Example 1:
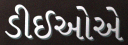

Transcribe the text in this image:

ડીઈઓએ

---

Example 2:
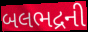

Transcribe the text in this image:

બલભદ્રની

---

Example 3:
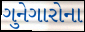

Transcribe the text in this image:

ગુનેગારોના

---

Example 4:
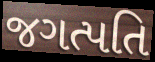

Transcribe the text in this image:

જગત્પતિ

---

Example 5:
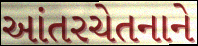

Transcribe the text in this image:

આંતરચેતનાને